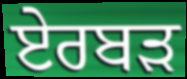
ਏਰਬੜ